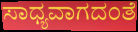
ಸಾಧ್ಯವಾಗದಂತೆ